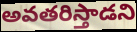
అవతరిస్తాడని